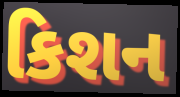
કિશન